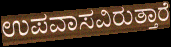
ಉಪವಾಸವಿರುತ್ತಾರೆ